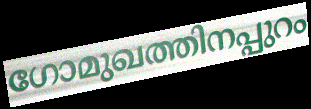
ഗോമുഖത്തിനപ്പുറം